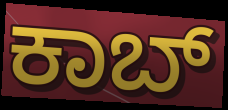
ಕಾಬ್